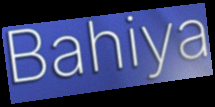
Bahiya